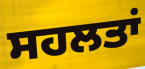
ਸਹਲਤਾਂ